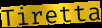
Tiretta